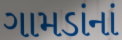
ગામડાંનાં